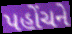
પહોંચને